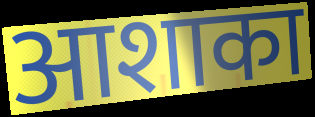
आशाका